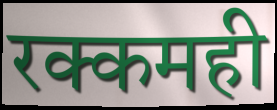
रक्कमही